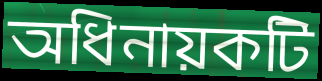
অধিনায়কটি